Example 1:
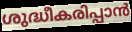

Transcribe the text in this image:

ശുദ്ധീകരിപ്പാൻ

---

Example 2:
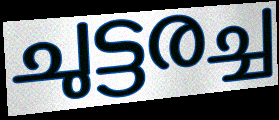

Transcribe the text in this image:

ചുട്ടരച്ച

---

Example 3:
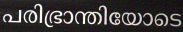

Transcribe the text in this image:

പരിഭ്രാന്തിയോടെ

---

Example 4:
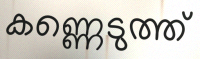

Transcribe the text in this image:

കണ്ണെടുത്ത്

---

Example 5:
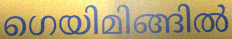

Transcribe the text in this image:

ഗെയിമിങ്ങിൽ